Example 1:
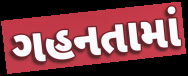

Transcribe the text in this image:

ગહનતામાં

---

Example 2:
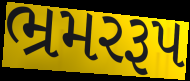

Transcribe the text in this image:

ભ્રમરરૂપ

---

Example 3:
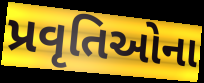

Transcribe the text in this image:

પ્રવૃતિઓના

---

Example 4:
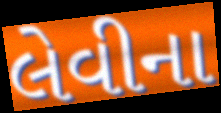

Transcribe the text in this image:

લેવીના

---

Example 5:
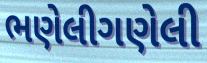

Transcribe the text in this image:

ભણેલીગણેલી